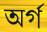
অৰ্গ